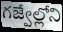
గజ్వేల్లోని